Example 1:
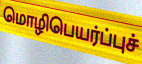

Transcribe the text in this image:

மொழிபெயர்ப்புச்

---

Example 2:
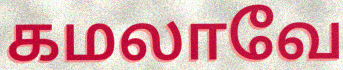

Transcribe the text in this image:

கமலாவே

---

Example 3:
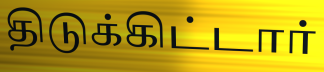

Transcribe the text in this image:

திடுக்கிட்டார்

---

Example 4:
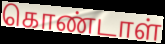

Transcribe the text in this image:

கொண்டாள்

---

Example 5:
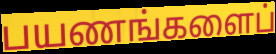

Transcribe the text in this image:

பயணங்களைப்